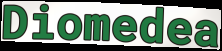
Diomedea